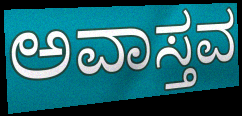
ಅವಾಸ್ತವ